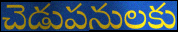
చెడుపనులకు